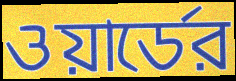
ওয়ার্ডের